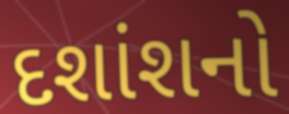
દશાંશનો